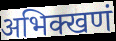
अभिक्खणं